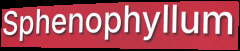
Sphenophyllum